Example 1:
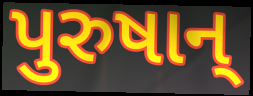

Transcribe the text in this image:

પુરુષાન્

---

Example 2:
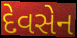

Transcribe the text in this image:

દેવસેન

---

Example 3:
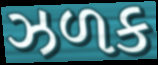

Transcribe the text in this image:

ઝળક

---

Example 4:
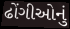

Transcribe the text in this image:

ઢોંગીઓનું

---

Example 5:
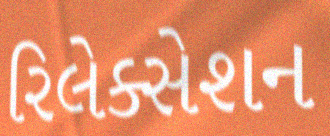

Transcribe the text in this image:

રિલેક્સેશન